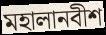
মহালানবীশ